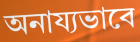
অনায্যভাবে